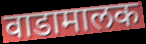
वाडामालक